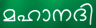
മഹാനദി